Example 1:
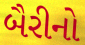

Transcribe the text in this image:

બૈરીનો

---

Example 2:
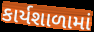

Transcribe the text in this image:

કાર્યશાળામાં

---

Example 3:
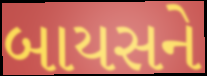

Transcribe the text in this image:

બાયસને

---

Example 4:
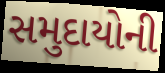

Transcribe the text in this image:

સમુદાયોની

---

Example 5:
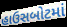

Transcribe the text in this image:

હાઉસબોટમાં